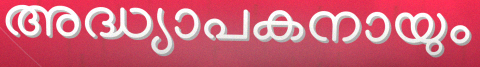
അദ്ധ്യാപകനായും